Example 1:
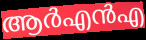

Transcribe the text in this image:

ആർഎൻഎ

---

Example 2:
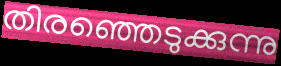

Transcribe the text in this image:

തിരഞ്ഞെടുക്കുന്നു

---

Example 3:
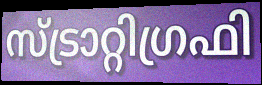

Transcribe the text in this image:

സ്ട്രാറ്റിഗ്രഫി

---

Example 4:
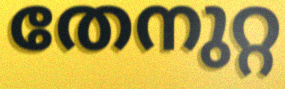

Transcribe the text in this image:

തേനുറ്റ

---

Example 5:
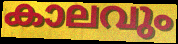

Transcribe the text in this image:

കാലവും